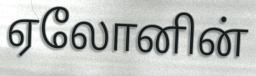
ஏலோனின்